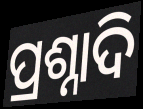
ପ୍ରଶ୍ନାଦି